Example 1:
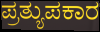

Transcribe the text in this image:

ಪ್ರತ್ಯುಪಕಾರ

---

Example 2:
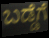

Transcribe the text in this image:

ಬಡ್ಡೆಗೆ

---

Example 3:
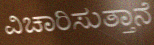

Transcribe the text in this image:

ವಿಚಾರಿಸುತ್ತಾನೆ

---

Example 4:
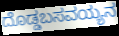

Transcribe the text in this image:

ದೊಡ್ಡಬಸವಯ್ಯನ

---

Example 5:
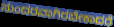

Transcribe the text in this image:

ಸುಂದರವಾಗಿರಬೇಕಾದರೆ